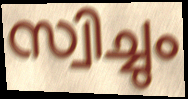
സ്വിച്ചും